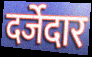
दर्जेदार